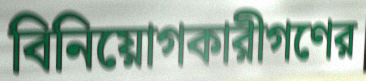
বিনিয়োগকারীগণের